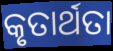
କୃତାର୍ଥତା